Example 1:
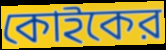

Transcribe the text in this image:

কোইকের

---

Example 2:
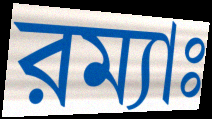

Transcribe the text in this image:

রম্যাঃ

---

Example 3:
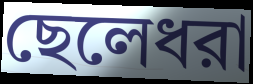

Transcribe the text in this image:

ছেলেধরা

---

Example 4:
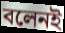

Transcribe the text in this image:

বলেনই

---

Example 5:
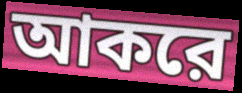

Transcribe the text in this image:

আকরে